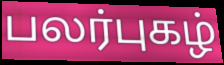
பலர்புகழ்